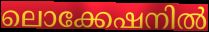
ലൊക്കേഷനിൽ